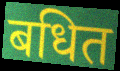
बधित